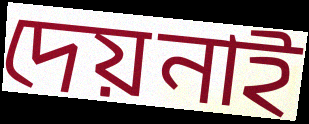
দেয়নাই